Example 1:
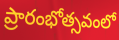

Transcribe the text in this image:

ప్రారంభోత్సవంలో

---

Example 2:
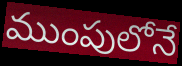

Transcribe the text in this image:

ముంపులోనే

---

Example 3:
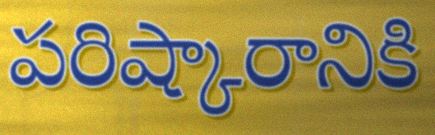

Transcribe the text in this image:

పరిష్కారానికి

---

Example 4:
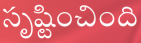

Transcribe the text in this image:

సృష్టించింది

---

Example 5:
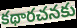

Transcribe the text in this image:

కథారచనకు